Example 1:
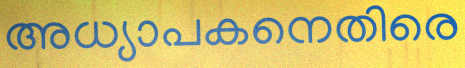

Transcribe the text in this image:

അധ്യാപകനെതിരെ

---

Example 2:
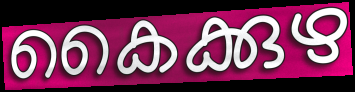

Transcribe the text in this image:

കൈക്കുഴ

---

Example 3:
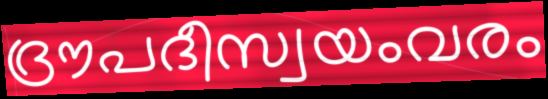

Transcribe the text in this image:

ദ്രൗപദീസ്വയംവരം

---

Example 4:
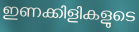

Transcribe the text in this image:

ഇണക്കിളികളുടെ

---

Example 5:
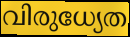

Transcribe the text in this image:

വിരുധ്യേത